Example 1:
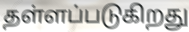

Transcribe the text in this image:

தள்ளப்படுகிறது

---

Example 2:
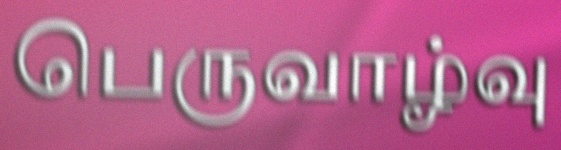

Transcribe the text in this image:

பெருவாழ்வு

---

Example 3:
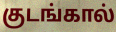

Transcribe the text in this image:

குடங்கால்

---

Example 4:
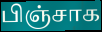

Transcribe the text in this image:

பிஞ்சாக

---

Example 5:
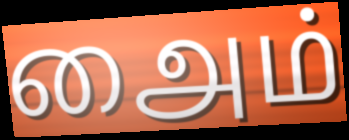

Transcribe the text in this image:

அைம்